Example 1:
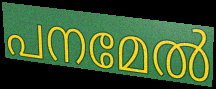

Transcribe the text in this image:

പനമേൽ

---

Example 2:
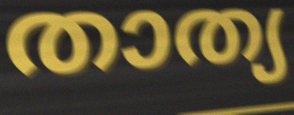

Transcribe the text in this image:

താത്യ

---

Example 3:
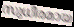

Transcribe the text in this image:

സുധീരമായ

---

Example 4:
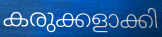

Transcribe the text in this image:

കരുക്കളാക്കി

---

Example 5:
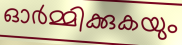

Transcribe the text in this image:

ഓർമ്മിക്കുകയും